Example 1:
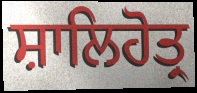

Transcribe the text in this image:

ਸ਼ਾਲਿਹੋਤ੍ਰ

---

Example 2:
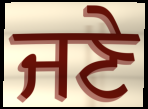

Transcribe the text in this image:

ਜਣੇ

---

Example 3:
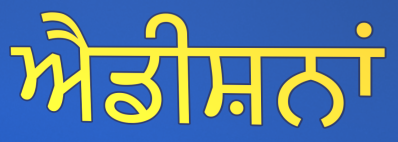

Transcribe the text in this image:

ਐਡੀਸ਼ਨਾਂ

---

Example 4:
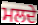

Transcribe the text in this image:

ਮਲਦੇ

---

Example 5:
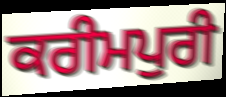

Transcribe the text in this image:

ਕਰੀਮਪੁਰੀ